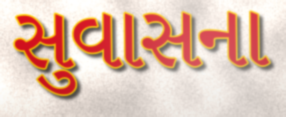
સુવાસના